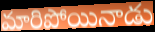
మారిపోయినాడు